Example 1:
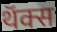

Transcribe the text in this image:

थॅक्स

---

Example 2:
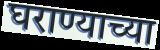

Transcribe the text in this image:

घराण्याच्या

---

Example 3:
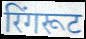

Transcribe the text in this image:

रिंगरूट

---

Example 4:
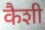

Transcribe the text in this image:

कैशी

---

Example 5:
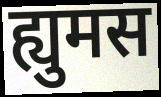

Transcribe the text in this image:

ह्युमस